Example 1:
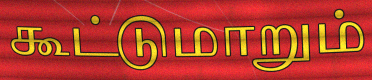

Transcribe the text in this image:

கூட்டுமாறும்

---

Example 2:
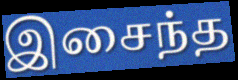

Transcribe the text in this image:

இசைந்த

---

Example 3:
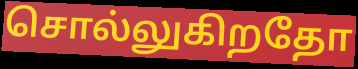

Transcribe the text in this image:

சொல்லுகிறதோ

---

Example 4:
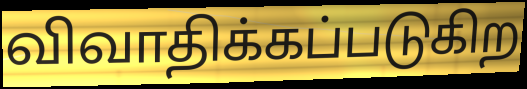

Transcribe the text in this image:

விவாதிக்கப்படுகிற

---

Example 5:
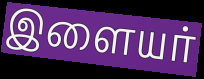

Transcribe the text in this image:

இளையர்